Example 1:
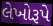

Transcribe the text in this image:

લેખોરૂપે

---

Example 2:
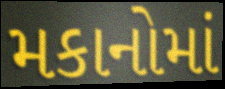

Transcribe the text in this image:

મકાનોમાં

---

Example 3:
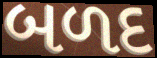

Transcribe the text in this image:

બળદ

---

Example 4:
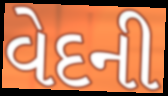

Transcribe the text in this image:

વેદની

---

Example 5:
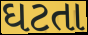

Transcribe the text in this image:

ઘટતા